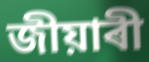
জীয়াৰী